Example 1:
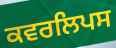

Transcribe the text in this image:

ਕਵਰਲਿਪਸ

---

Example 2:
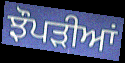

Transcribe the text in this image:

ਝੌਪੜੀਆਂ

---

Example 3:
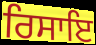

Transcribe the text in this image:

ਰਿਸਾਇ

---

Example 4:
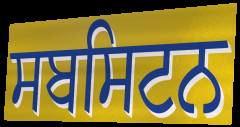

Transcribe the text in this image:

ਸਬਸਿਟਨ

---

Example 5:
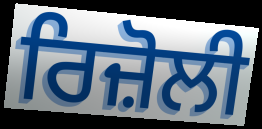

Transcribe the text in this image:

ਰਿਜ਼ੋਲੀ